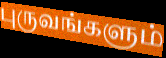
புருவங்களும்